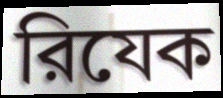
রিযেক